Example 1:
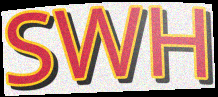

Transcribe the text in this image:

SWH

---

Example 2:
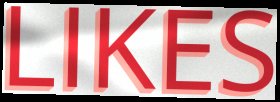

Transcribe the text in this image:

LIKES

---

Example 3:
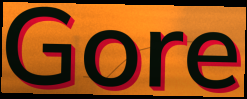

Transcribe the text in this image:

Gore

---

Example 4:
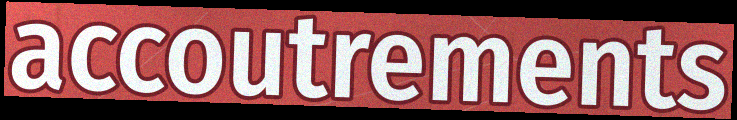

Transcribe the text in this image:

accoutrements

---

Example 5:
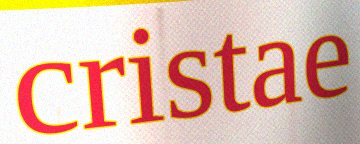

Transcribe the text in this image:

cristae